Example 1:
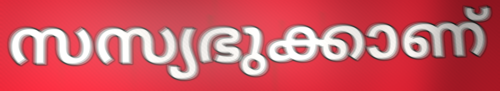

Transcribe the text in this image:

സസ്യഭുക്കാണ്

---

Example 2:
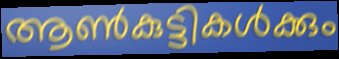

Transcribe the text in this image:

ആൺകുട്ടികൾക്കും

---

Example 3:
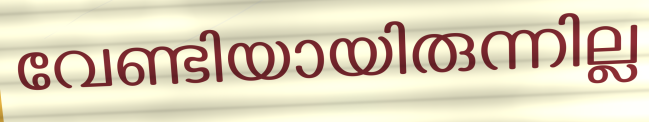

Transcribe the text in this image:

വേണ്ടിയായിരുന്നില്ല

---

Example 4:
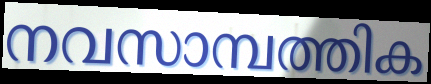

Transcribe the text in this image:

നവസാമ്പത്തിക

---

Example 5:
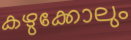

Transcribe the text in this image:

കഴുക്കോലും